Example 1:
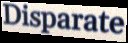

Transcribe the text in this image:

Disparate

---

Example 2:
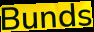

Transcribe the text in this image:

Bunds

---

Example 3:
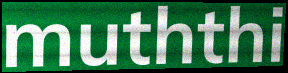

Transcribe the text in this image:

muththi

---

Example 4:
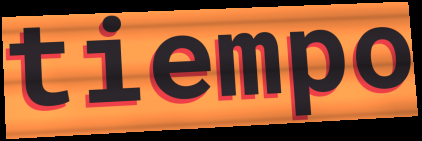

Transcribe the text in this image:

tiempo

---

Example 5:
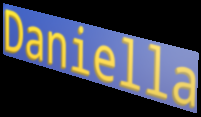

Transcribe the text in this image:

Daniella